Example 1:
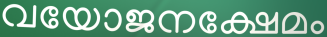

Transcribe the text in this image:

വയോജനക്ഷേമം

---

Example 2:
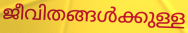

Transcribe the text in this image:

ജീവിതങ്ങൾക്കുള്ള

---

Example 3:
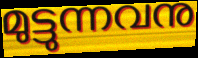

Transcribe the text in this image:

മുട്ടുന്നവനു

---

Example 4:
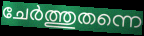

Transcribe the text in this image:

ചേർത്തുതന്നെ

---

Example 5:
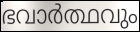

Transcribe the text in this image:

ഭവാർത്ഥവും